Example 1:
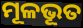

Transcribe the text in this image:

ମୂଳଭୂତ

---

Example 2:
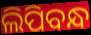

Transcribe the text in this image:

ଲିପିବନ୍ଧ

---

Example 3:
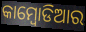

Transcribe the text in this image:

କାମ୍ବୋଡିଆର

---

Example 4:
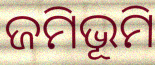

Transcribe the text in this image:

ଜମିଭୂମି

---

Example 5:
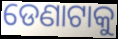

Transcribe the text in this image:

ଡେଣାଟାକୁ